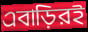
এবাড়িরই